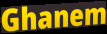
Ghanem